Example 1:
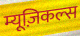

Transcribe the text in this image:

म्यूज़िकल्स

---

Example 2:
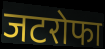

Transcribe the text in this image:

जटरोफा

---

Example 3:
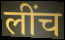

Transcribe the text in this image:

लींच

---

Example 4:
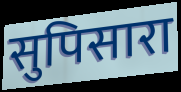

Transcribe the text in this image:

सुपिसारा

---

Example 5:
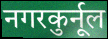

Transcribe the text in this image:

नगरकुर्नूल